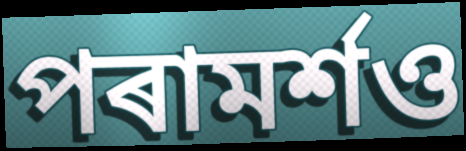
পৰামৰ্শও